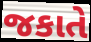
જકાતે